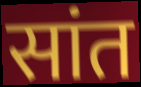
सांत